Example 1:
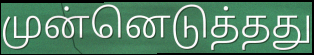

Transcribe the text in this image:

முன்னெடுத்தது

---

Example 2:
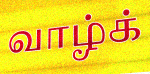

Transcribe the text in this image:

வாழ்க்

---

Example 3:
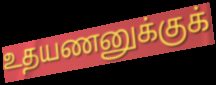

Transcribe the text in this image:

உதயணனுக்குக்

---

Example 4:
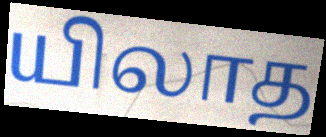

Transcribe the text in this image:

யிலாத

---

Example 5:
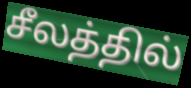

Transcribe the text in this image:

சீலத்தில்